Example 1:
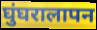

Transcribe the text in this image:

घुंघरालापन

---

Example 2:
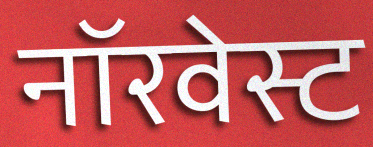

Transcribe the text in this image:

नॉरवेस्ट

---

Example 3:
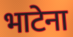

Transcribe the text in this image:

भाटेना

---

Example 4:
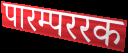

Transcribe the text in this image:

पारम्पररक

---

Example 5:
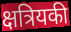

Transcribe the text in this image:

क्षत्रियकी